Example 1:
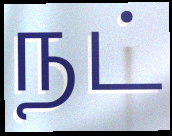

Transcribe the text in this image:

நட்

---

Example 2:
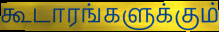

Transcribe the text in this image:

கூடாரங்களுக்கும்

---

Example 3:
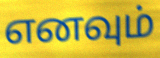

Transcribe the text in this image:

எனவும்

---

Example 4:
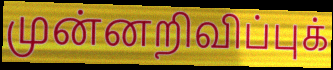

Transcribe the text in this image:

முன்னறிவிப்புக்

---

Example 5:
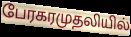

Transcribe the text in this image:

பேரகரமுதலியில்